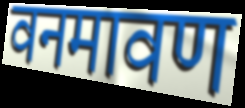
वनमावण